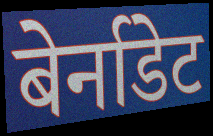
बेर्नाडेट